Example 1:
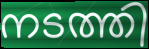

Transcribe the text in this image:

നടത്തി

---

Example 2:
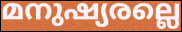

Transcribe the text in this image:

മനുഷ്യരല്ലെ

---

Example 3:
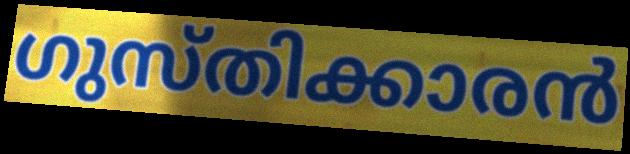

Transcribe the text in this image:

ഗുസ്തിക്കാരൻ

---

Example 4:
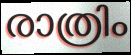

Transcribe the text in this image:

രാത്രിം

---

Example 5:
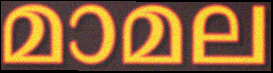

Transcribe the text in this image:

മാമല